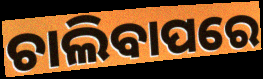
ଚାଲିବାପରେ